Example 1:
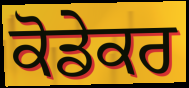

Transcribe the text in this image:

ਕੋਡੇਕਰ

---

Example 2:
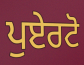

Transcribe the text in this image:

ਪੁਏਰਟੋ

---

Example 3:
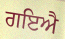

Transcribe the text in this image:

ਗਇਐ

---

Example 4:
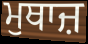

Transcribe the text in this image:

ਮੁਥਾਜ਼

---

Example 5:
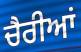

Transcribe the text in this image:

ਚੈਰੀਆਂ